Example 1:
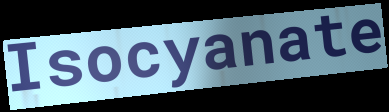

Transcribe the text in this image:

Isocyanate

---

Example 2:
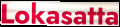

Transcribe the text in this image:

Lokasatta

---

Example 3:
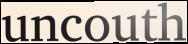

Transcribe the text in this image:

uncouth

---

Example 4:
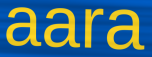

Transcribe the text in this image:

aara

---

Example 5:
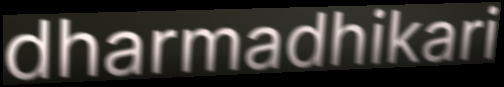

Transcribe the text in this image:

dharmadhikari